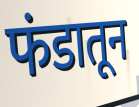
फंडातून